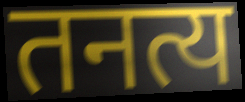
तनत्य